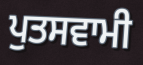
ਪੁਤਸਵਾਮੀ